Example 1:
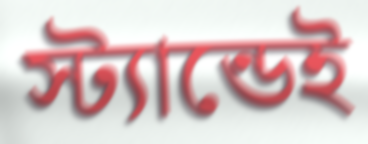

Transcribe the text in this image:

স্ট্যান্ডেই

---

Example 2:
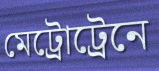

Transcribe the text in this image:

মেট্রোট্রেনে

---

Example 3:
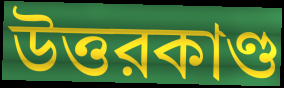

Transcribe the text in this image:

উত্তরকাণ্ড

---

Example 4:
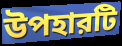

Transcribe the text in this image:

উপহারটি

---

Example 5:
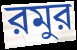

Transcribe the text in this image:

রমুর